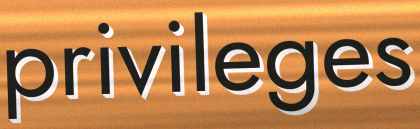
privileges